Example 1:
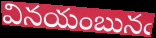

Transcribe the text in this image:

వినయంబునఁ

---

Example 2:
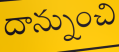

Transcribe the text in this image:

దాన్నుంచి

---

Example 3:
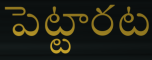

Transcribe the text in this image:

పెట్టారట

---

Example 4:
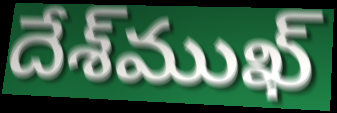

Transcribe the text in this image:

దేశ్‌ముఖ్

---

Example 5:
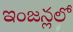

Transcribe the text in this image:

ఇంజన్లలో